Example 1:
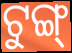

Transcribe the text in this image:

ଟୁଙ୍ଗ୍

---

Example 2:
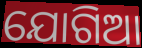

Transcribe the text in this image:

ଯୋଗିଆ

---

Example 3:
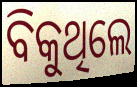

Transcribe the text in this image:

ବିକୁଥିଲେ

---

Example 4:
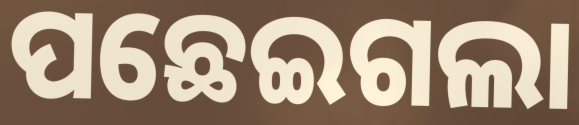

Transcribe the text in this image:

ପଛେଇଗଲା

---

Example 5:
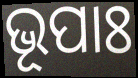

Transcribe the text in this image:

ଭୂପାଃ